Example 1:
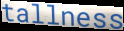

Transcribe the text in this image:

tallness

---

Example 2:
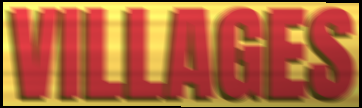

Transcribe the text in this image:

VILLAGES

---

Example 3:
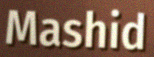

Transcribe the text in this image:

Mashid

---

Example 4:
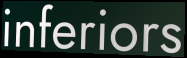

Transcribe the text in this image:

inferiors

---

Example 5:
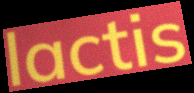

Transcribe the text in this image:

lactis